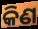
କିଣ